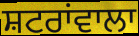
ਸ਼ਟਰਾਂਵਾਲਾ